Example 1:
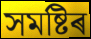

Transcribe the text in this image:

সমষ্টিৰ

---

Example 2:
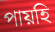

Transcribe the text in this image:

পায়হি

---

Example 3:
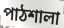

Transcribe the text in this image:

পাঠশালা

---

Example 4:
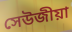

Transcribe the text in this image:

সেউজীয়া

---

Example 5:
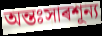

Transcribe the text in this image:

অন্তঃসাৰশূন্য